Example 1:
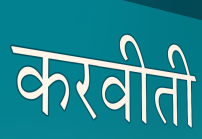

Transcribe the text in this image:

करवीती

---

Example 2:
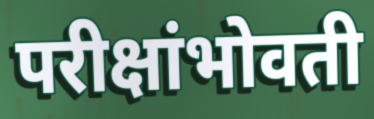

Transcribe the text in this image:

परीक्षांभोवती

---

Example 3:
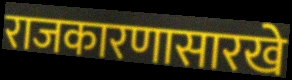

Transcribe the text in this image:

राजकारणासारखे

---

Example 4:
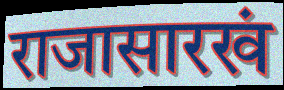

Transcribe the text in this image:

राजासारखं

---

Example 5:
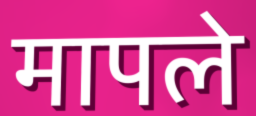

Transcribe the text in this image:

मापले